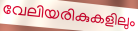
വേലിയരികുകളിലും